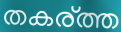
തകര്ത്ത